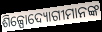
ଶିଳ୍ପୋଦ୍ୟୋଗୀମାନଙ୍କ